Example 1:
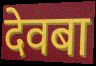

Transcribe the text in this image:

देवबा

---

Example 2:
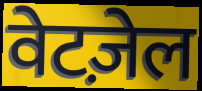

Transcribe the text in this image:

वेटज़ेल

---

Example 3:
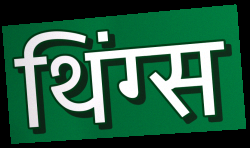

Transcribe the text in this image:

थिंग्स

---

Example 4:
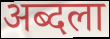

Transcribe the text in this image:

अब्दला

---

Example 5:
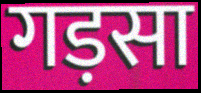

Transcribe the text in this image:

गड़सा